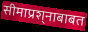
सीमाप्रश्नाबाबत